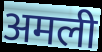
अमली